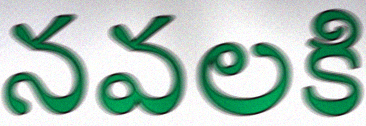
నవలకి